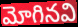
మోగినవి